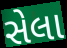
સેલા